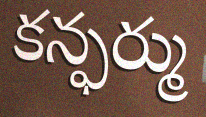
కన్ఫర్ము